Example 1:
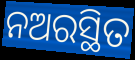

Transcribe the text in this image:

ନଅରସ୍ଥିତ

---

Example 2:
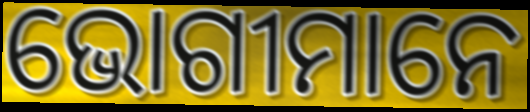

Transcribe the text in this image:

ଭୋଗୀମାନେ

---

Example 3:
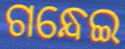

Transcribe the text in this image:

ଗନ୍ଧେଇ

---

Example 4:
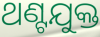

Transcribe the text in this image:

ଥଣ୍ଟଯୁକ୍ତ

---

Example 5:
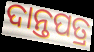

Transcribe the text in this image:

ଦାନ୍ତପତ୍ର